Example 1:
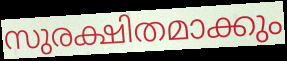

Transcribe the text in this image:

സുരക്ഷിതമാക്കും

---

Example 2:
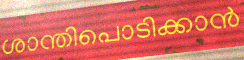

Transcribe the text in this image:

ശാന്തിപൊടിക്കാൻ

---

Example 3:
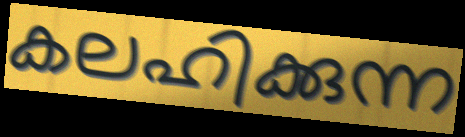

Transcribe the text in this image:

കലഹിക്കുന്ന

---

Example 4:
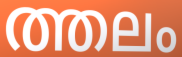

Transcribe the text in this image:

ത്തലം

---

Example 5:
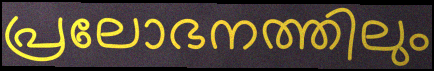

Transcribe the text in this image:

പ്രലോഭനത്തിലും